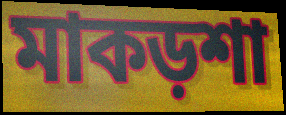
মাকড়শা